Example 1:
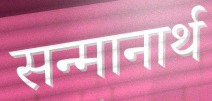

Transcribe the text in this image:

सन्मानार्थ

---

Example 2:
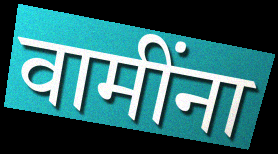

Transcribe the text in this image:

वामींना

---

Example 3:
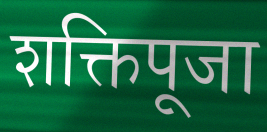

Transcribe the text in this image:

शक्तिपूजा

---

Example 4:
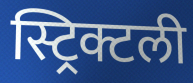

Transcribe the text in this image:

स्ट्रिक्टली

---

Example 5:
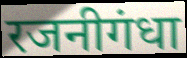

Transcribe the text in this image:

रजनीगंधा